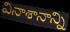
వినాశానాన్ని